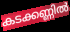
കടക്കണ്ണിൽ